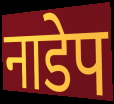
नाडेप